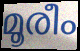
മൂരീം